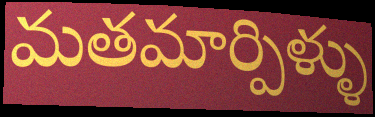
మతమార్పిళ్ళు